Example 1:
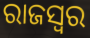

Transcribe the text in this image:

ରାଜସ୍ବର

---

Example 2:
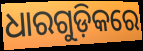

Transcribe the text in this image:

ଧାରଗୁଡ଼ିକରେ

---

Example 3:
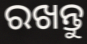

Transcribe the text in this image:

ରଖନ୍ତୁ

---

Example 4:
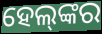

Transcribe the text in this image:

ହେଲ୍‌ଙ୍କର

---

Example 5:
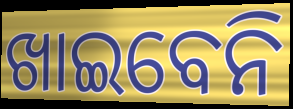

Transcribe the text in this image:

ଖାଇବେନି